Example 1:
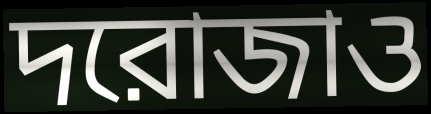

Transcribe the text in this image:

দরোজাও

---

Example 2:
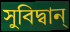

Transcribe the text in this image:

সুবিদ্বান্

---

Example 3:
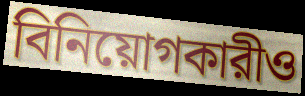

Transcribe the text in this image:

বিনিয়োগকারীও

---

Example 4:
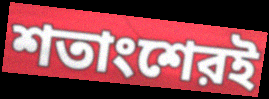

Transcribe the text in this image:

শতাংশেরই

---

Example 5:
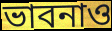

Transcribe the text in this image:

ভাবনাও